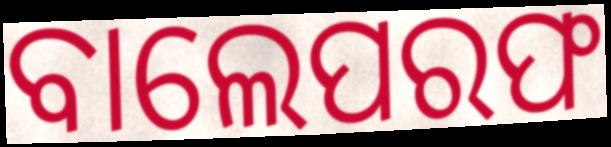
ବାଲେପରଫ